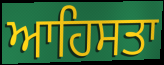
ਆਹਿਸਤਾ